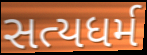
સત્યધર્મ